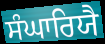
ਸੰਘਾਰਿਯੈ